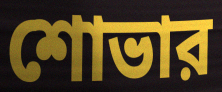
শোভার